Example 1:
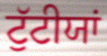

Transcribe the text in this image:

ਟੁੱਟੀਯਾਂ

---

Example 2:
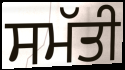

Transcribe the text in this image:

ਸਮੱਤੀ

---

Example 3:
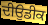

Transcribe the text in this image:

ਦੀਉਡੀਕ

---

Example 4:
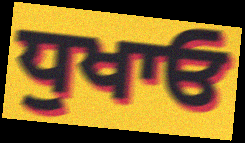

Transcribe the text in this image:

ਧੁਖਾਓ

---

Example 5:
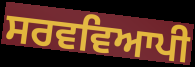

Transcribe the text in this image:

ਸਰਵਵਿਆਪੀ